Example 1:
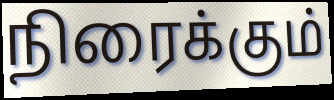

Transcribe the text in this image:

நிரைக்கும்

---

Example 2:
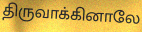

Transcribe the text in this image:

திருவாக்கினாலே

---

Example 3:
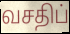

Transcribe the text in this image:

வசதிப்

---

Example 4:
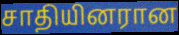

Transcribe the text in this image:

சாதியினரான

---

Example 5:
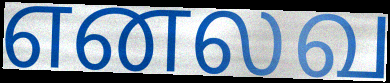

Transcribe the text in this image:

எனலவ